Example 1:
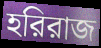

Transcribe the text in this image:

হরিরাজ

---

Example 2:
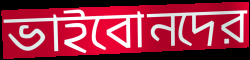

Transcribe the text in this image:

ভাইবোনদের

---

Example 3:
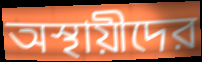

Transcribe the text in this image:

অস্থায়ীদের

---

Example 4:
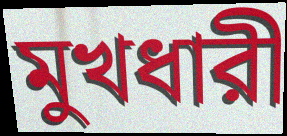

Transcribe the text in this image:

মুখধারী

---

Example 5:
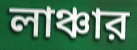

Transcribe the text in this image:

লাঞ্চার